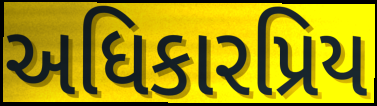
અધિકારપ્રિય